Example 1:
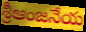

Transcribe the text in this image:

శ్రీఆంజనేయ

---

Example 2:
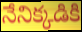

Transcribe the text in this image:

నేనిక్కడికి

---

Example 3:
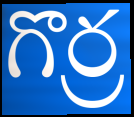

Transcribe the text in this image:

గొర్ర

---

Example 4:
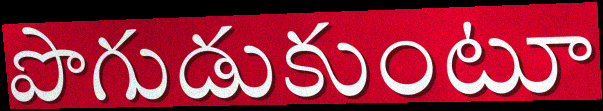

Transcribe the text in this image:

పొగుడుకుంటూ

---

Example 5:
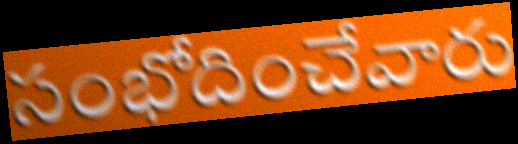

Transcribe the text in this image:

సంభోదించేవారు